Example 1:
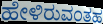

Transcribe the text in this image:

ಹೇಳಿರುವಂತಹ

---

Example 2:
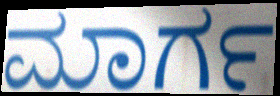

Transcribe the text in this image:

ಮಾರ್ಗ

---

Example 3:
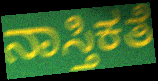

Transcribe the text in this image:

ನಾಸ್ತಿಕತೆ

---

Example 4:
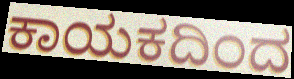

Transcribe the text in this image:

ಕಾಯಕದಿಂದ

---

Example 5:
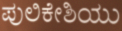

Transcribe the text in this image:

ಪುಲಿಕೇಶಿಯು